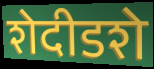
शेदीडशे